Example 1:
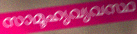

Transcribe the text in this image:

സാമൂഹ്യവ്യവസ്ഥ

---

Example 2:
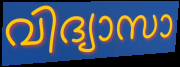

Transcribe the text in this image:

വിദ്യാസാ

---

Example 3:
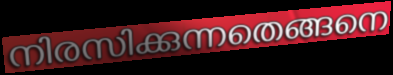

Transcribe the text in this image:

നിരസിക്കുന്നതെങ്ങനെ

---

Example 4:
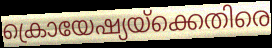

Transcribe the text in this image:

ക്രൊയേഷ്യയ്ക്കെതിരെ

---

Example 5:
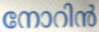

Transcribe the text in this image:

നോറിൻ